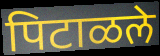
पिटाळले